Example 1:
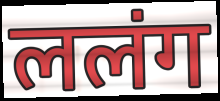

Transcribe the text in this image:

ललंग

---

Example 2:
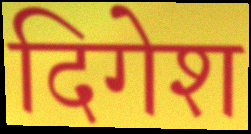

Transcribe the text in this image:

दिगेश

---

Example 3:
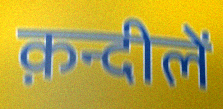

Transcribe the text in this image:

क़न्दीलें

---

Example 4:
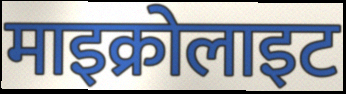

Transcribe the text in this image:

माइक्रोलाइट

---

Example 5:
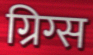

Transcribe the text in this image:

ग्रिग्स